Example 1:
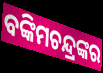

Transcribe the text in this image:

ବଙ୍କିମଚନ୍ଦ୍ରଙ୍କର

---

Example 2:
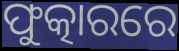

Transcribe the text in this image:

ଫୁତ୍କାରରେ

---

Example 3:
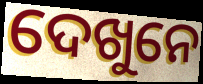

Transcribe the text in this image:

ଦେଖୁନେ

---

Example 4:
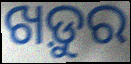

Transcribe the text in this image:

ଖଡ଼ୁର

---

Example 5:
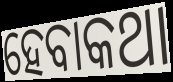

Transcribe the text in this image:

ହେବାକଥା